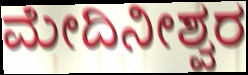
ಮೇದಿನೀಶ್ವರ